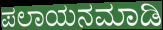
ಪಲಾಯನಮಾಡಿ